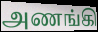
அணங்கி